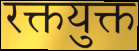
रक्तयुक्त